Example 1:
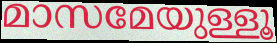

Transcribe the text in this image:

മാസമേയുള്ളൂ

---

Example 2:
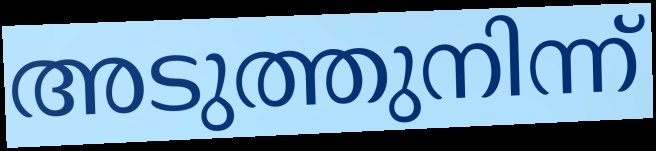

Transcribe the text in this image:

അടുത്തുനിന്ന്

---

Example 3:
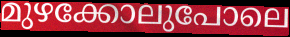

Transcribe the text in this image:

മുഴക്കോലുപോലെ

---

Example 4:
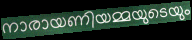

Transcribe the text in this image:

നാരായണിയമ്മയുടെയും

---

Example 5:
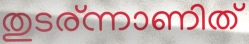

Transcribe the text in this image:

തുടര്ന്നാണിത്